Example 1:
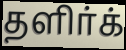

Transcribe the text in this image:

தளிர்க்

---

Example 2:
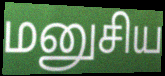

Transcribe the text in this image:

மனுசிய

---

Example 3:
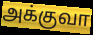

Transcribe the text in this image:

அக்குவா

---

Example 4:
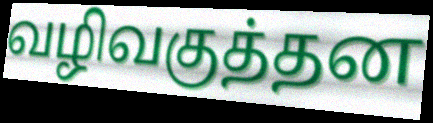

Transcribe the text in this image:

வழிவகுத்தன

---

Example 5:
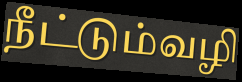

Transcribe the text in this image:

நீட்டும்வழி